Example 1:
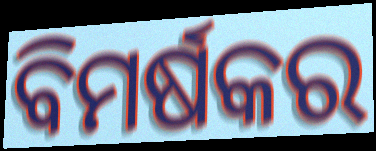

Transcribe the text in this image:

ବିମର୍ଷକର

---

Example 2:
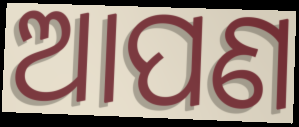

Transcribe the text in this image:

ଆପଣ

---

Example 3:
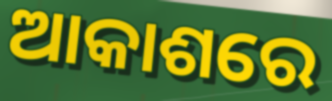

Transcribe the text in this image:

ଆକାଶରେ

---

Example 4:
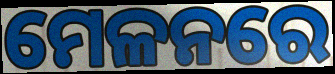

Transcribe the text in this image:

ମେଳନରେ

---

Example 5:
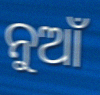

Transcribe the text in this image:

ନୁଆଁ